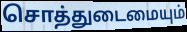
சொத்துடைமையும்